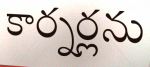
కార్నర్లను